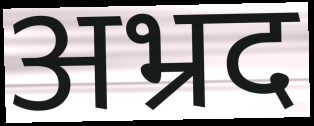
अभ्रद